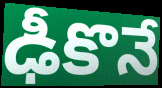
ఢీకొనే